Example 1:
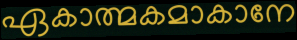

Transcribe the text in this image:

ഏകാത്മകമാകാനേ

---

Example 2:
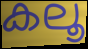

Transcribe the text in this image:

കലൂ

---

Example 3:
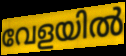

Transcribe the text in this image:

വേളയിൽ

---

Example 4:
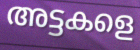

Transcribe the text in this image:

അട്ടകളെ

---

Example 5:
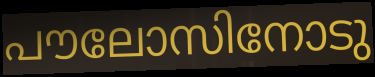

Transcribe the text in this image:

പൗലോസിനോടു